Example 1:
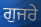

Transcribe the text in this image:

ਗੁਜਰੇ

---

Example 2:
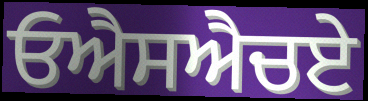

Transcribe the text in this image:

ਓਐਸਐਚਏ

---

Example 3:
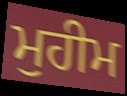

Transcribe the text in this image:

ਮੁਹੀਮ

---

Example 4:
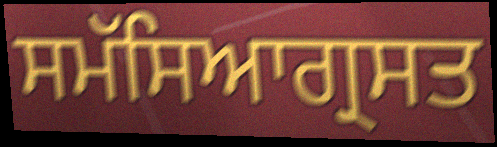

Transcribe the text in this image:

ਸਮੱਸਿਆਗ੍ਰਸਤ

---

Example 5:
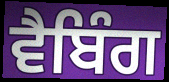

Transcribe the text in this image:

ਵੈਬਿੰਗ